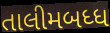
તાલીમબધ્ધ